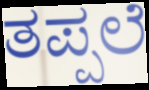
ತಪ್ಪಲೆ